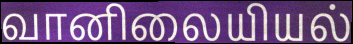
வானிலையியல்